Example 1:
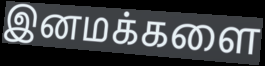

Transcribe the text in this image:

இனமக்களை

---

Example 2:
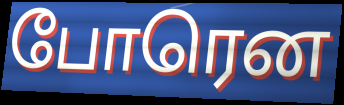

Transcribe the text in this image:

போரென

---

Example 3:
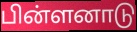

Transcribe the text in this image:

பின்ளனாடு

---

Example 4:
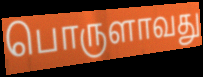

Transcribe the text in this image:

பொருளாவது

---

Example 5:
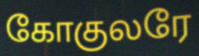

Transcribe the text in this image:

கோகுலரே